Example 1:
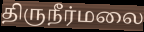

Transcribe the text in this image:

திருநீர்மலை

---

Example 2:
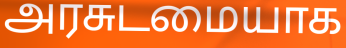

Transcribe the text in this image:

அரசுடமையாக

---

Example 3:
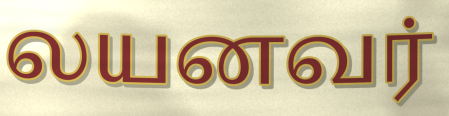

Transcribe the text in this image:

லயனவர்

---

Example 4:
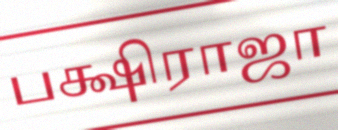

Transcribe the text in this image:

பக்ஷிராஜா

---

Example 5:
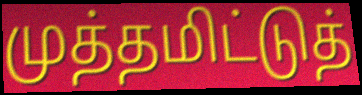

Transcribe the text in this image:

முத்தமிட்டுத்